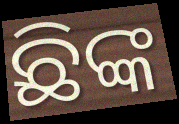
ଛିଙ୍କ